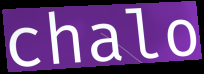
chalo